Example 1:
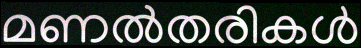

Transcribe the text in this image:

മണൽതരികൾ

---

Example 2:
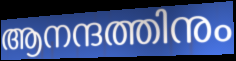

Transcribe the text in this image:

ആനന്ദത്തിനും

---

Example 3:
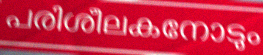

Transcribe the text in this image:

പരിശീലകനോടും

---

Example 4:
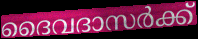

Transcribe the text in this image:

ദൈവദാസർക്ക്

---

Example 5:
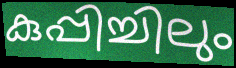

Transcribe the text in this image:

കുപ്പിച്ചിലും